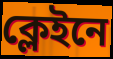
ক্লেইনে